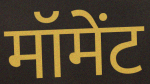
मॉमेंट